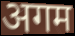
अगम